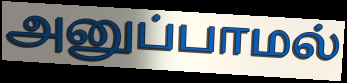
அனுப்பாமல்